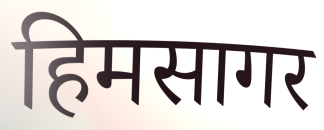
हिमसागर